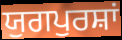
ਯੁਗਪੁਰਸ਼ਾਂ